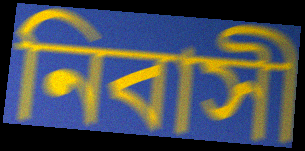
নিবাসী